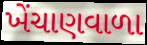
ખેંચાણવાળા